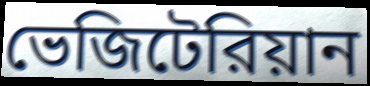
ভেজিটেরিয়ান